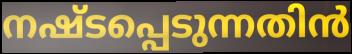
നഷ്ടപ്പെടുന്നതിൻ